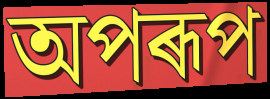
অপৰূপ